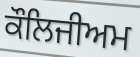
ਕੌਲਿਜੀਅਮ